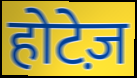
होटेज़